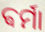
ଵର୍ମା